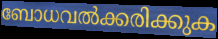
ബോധവൽക്കരിക്കുക